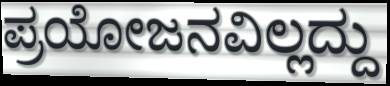
ಪ್ರಯೋಜನವಿಲ್ಲದ್ದು